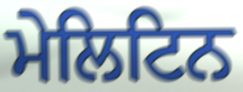
ਮੇਲਿਟਿਨ